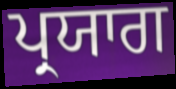
ਪ੍ਰਯਾਗ